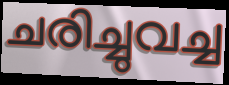
ചരിച്ചുവച്ച